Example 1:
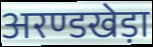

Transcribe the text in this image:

अरण्डखेड़ा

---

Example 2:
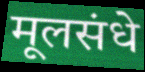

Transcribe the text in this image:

मूलसंधे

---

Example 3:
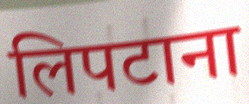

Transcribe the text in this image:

लिपटाना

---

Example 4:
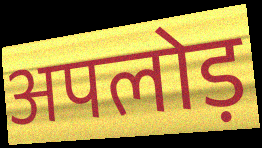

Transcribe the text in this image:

अपलोड़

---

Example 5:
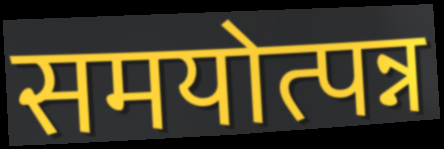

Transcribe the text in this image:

समयोत्पन्न